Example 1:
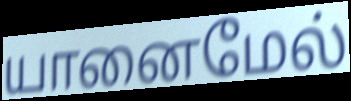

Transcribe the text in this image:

யானைமேல்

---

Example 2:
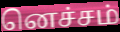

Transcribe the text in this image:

னெச்சம்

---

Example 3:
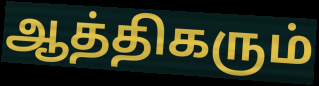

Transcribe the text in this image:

ஆத்திகரும்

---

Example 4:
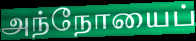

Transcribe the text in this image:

அந்நோயைப்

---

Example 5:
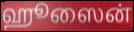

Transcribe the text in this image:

ஹூஸைன்